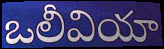
ఒలీవియా